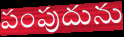
పంపుదును